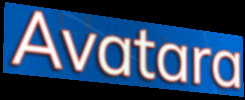
Avatara